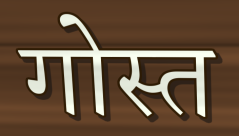
गोस्त